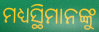
ମଧ୍ୟସ୍ଥିମାନଙ୍କୁ